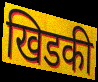
खिडकी